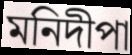
মনিদীপা